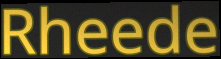
Rheede